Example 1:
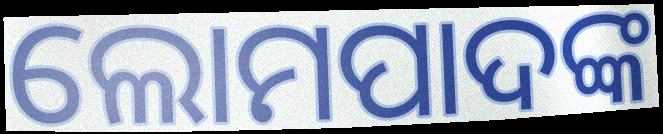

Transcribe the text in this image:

ଲୋମପାଦଙ୍କ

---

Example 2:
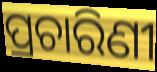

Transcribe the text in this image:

ପ୍ରଚାରିଣୀ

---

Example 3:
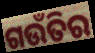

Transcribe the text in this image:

ଗଉଁତିର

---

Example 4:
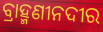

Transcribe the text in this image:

ବ୍ରାହ୍ମଣୀନଦୀର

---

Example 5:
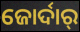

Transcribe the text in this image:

ଜୋର୍ଦାର୍